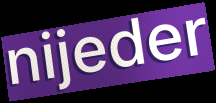
nijeder